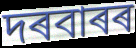
দৰবাৰৰ